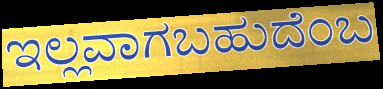
ಇಲ್ಲವಾಗಬಹುದೆಂಬ